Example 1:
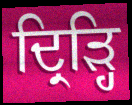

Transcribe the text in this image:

ਦ੍ਰਿੜ੍ਹਿ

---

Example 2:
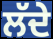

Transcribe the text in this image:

ਲੱਦੇ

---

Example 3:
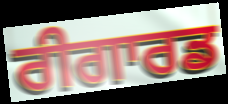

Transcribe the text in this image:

ਰੀਗਾਰਡ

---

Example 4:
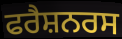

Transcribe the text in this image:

ਫਰੈਸ਼ਨਰਸ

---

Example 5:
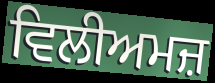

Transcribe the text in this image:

ਵਿਲੀਅਮਜ਼